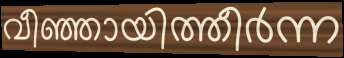
വീഞ്ഞായിത്തീർന്ന